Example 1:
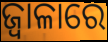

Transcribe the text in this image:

ଜ୍ଵାଳାରେ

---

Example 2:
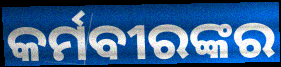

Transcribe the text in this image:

କର୍ମବୀରଙ୍କର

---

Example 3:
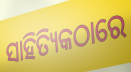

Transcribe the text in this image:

ସାହିତ୍ୟିକଠାରେ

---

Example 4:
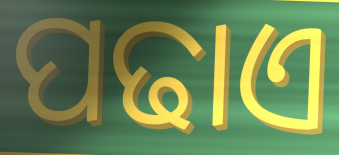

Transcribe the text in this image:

ପଢାଏ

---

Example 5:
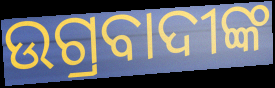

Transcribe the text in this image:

ଉଗ୍ରବାଦୀଙ୍କ